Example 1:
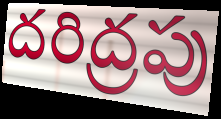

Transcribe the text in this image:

దరిద్రపు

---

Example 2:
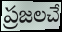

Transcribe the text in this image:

ప్రజలచే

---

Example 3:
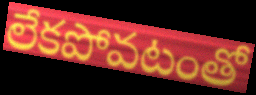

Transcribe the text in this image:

లేకపోవటంతో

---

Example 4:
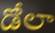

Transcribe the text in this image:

డోలా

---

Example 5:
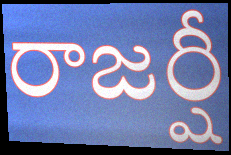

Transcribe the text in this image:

రాజర్షీ